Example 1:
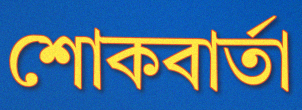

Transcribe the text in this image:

শোকবার্তা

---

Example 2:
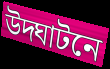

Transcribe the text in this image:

উদ্ঘাটনে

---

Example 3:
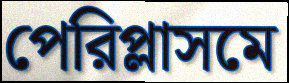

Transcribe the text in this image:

পেরিপ্লাসমে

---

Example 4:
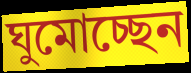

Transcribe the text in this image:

ঘুমোচ্ছেন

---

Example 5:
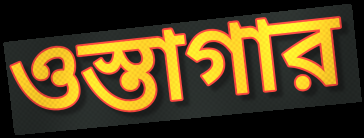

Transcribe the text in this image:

ওস্তাগার